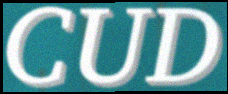
CUD